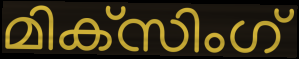
മിക്‌സിംഗ്